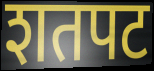
शतपट